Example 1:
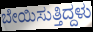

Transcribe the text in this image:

ಬೇಯಿಸುತ್ತಿದ್ದಳು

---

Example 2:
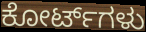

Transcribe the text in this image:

ಕೋರ್ಟ್‌ಗಳು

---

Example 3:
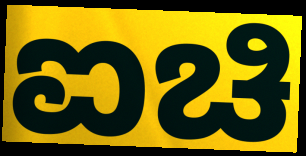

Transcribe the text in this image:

ಐಚಿ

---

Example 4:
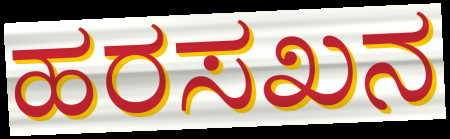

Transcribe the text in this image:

ಹರಸಖನ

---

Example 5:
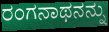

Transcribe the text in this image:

ರಂಗನಾಥನನ್ನು